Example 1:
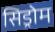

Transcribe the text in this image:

सिड्रोम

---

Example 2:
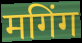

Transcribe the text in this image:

मगिंग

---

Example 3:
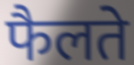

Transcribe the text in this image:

फैलते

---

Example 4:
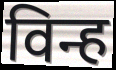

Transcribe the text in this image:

विन्ह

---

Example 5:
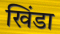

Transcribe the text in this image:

खिंडा